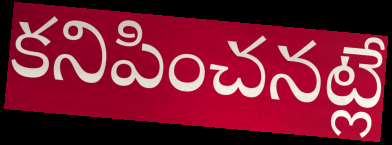
కనిపించనట్లే